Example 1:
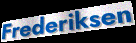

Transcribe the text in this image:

Frederiksen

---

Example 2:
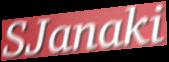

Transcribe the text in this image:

SJanaki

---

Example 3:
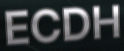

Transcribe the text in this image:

ECDH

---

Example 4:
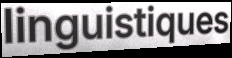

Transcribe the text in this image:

linguistiques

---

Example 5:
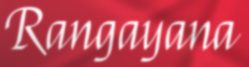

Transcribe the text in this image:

Rangayana